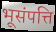
भूसंपत्ति